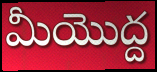
మీయొద్ద